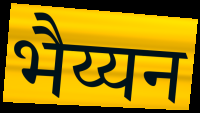
भैय्यन